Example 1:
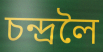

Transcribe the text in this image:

চন্দ্ৰলৈ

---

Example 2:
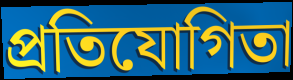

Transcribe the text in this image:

প্ৰতিযোগিতা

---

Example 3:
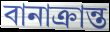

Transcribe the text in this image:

বানাক্ৰান্ত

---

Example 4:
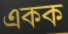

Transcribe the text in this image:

একক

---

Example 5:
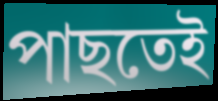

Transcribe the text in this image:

পাছতেই